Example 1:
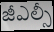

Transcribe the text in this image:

జీఎల్సీ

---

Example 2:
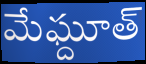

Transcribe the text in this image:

మేఘ్దూత్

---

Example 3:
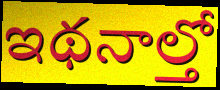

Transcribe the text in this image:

ఇథనాల్తో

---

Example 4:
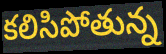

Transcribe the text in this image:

కలిసిపోతున్న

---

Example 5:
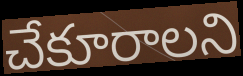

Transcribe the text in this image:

చేకూరాలని